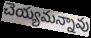
చెయ్యమన్నావు